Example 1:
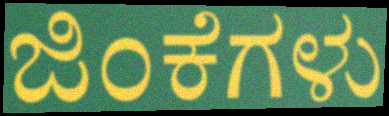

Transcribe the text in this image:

ಜಿಂಕೆಗಳು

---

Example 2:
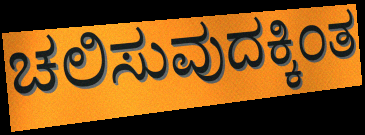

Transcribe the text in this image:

ಚಲಿಸುವುದಕ್ಕಿಂತ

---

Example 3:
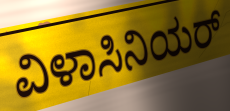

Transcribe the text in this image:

ವಿಳಾಸಿನಿಯರ್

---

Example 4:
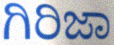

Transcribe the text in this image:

ಗಿರಿಜಾ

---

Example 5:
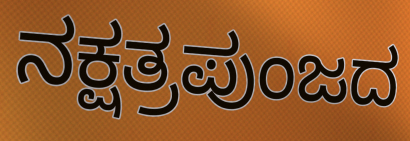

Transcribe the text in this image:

ನಕ್ಷತ್ರಪುಂಜದ